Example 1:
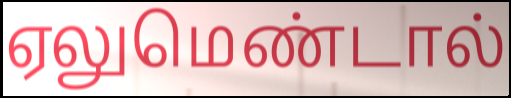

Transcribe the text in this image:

ஏலுமெண்டால்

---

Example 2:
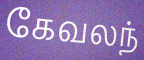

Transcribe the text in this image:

கேவலந்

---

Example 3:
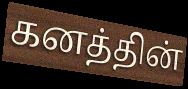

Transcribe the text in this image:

கனத்தின்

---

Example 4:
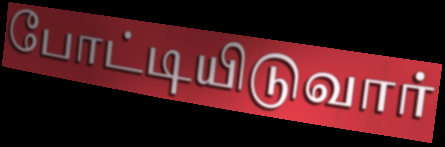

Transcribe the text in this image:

போட்டியிடுவார்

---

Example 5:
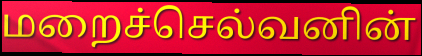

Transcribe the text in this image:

மறைச்செல்வனின்